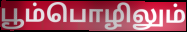
பூம்பொழிலும்